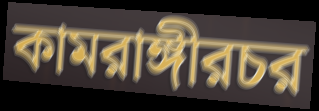
কামরাঙ্গীরচর